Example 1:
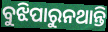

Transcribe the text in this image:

ବୁଝିପାରୁନଥାନ୍ତି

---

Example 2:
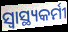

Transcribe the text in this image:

ସ୍ୱାସ୍ଥ୍ୟକର୍ମୀ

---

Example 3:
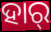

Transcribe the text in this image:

ହାର୍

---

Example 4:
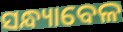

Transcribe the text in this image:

ସନ୍ଧ୍ୟାବେଳ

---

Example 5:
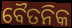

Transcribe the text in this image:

ବୈତନିକ